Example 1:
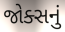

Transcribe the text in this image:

જોક્સનું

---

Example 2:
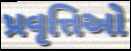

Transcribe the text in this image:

પ્રવૃત્તિઓ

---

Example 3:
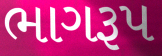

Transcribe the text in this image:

ભાગરૂપ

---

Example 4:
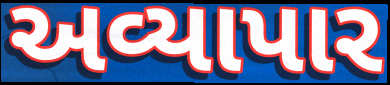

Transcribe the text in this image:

અવ્યાપાર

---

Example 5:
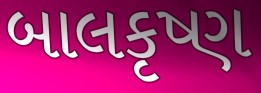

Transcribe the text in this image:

બાલકૃષ્ણ